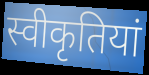
स्वीकृतियां